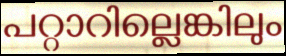
പറ്റാറില്ലെങ്കിലും